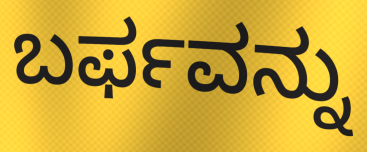
ಬರ್ಫವನ್ನು